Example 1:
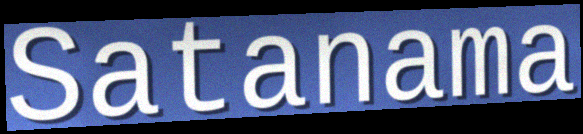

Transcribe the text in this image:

Satanama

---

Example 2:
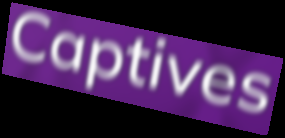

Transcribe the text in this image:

Captives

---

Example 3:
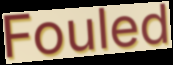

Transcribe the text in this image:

Fouled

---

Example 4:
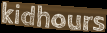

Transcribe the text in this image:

kidhours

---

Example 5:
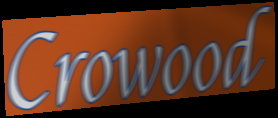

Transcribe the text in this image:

Crowood